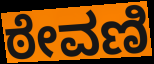
ಠೇವಣಿ